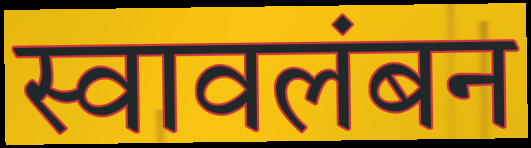
स्वावलंबन